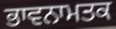
ਭਾਵਨਾਮਤਕ